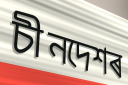
চীনদেশৰ